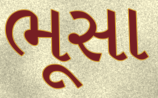
ભૂસા